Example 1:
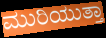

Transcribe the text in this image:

ಮುರಿಯುತ್ತಾ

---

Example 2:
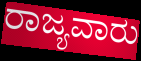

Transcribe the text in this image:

ರಾಜ್ಯವಾರು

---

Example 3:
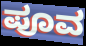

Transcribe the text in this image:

ಪೂವ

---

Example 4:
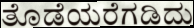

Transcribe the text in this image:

ತೊಡೆಯರೆಗಡಿದು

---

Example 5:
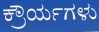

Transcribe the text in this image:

ಕ್ರೌರ್ಯಗಳು